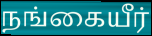
நங்கையீர்